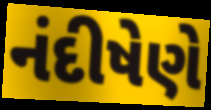
નંદીષેણે